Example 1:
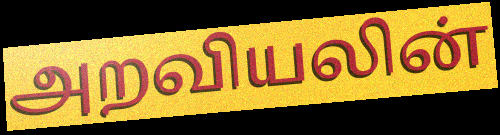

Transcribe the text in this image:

அறவியலின்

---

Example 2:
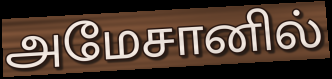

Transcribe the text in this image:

அமேசானில்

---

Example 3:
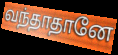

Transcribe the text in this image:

வந்தாதானே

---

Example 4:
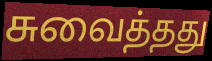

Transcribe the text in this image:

சுவைத்தது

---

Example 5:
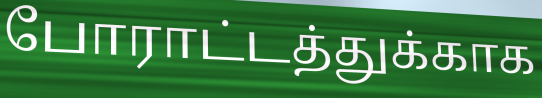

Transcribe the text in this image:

போராட்டத்துக்காக